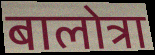
बालोत्रा